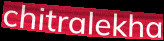
chitralekha